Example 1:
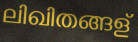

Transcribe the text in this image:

ലിഖിതങ്ങള്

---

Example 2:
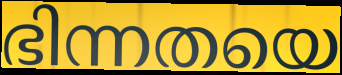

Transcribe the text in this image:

ഭിന്നതയെ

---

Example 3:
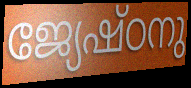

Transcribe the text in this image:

ജ്യേഷ്ഠനു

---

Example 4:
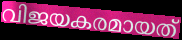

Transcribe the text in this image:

വിജയകരമായത്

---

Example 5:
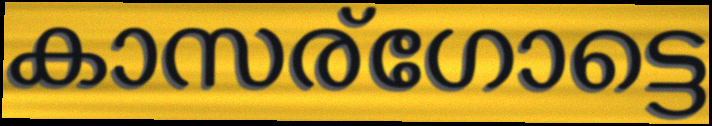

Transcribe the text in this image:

കാസര്ഗോട്ടെ